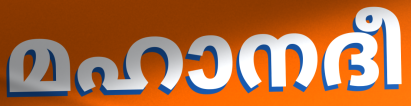
മഹാനദീ